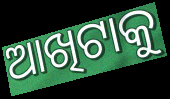
ଆଖିଟାକୁ